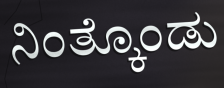
ನಿಂತ್ಕೊಂಡು